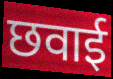
छवाई